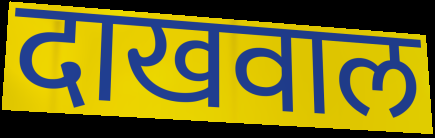
दाखवाल